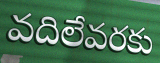
వదిలేవరకు